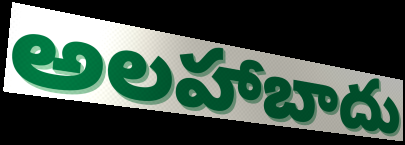
అలహాబాదు